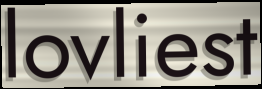
lovliest